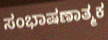
ಸಂಭಾಷಣಾತ್ಮಕ